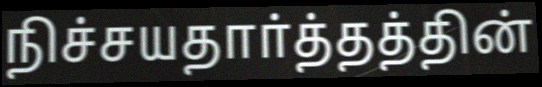
நிச்சயதார்த்தத்தின்